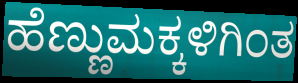
ಹೆಣ್ಣುಮಕ್ಕಳಿಗಿಂತ